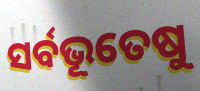
ସର୍ବଭୂତେଷୁ